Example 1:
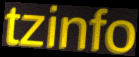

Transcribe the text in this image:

tzinfo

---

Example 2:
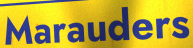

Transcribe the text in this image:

Marauders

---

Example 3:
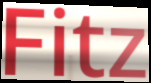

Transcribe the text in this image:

Fitz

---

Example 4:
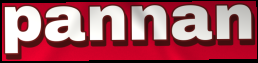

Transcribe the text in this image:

pannan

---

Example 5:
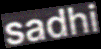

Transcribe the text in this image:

sadhi